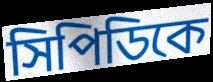
সিপিডিকে